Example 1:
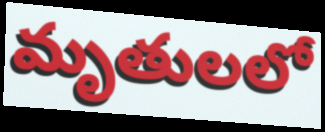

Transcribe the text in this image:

మృతులలో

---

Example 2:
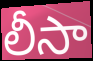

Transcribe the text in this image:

లీసా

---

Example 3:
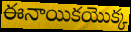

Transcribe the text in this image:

ఈనాయికయొక్క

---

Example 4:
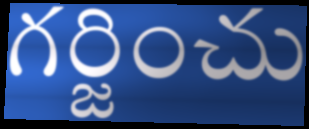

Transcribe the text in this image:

గర్జించు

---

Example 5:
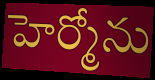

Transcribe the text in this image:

హెర్మోను